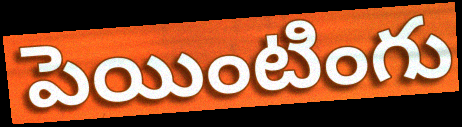
పెయింటింగు